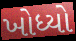
ખોધ્યો